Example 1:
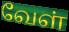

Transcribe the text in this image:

வேள்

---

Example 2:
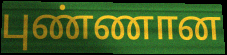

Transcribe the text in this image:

புண்ணான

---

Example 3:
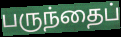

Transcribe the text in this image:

பருந்தைப்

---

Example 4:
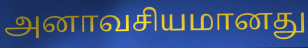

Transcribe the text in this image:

அனாவசியமானது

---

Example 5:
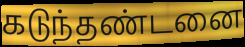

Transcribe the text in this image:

கடுந்தண்டனை